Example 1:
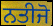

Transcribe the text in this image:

ਨਤੀਜੋ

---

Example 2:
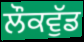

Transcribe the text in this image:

ਲੌਕਵੁੱਡ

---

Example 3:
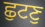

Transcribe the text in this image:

ਛੁਟਣੁ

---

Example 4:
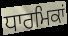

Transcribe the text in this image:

ਧਾਰਮਿਕਾਂ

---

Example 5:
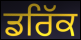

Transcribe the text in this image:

ਡਰਿੱਕ